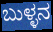
ಬುಳ್ಳನ